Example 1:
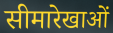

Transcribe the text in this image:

सीमारेखाओं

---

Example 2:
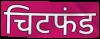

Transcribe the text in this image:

चिटफंड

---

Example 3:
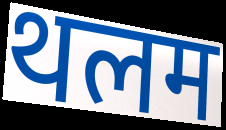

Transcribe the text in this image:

थलम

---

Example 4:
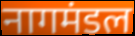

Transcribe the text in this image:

नागमंडल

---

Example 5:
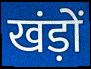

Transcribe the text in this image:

खंड़ों